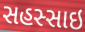
સહસ્સાઇ